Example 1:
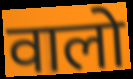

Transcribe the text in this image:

वालो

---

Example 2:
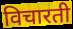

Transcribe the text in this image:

विचारती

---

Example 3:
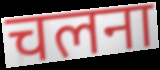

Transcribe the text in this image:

चलना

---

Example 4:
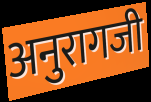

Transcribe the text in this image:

अनुरागजी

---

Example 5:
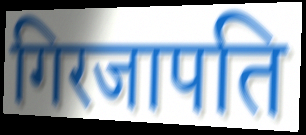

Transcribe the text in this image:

गिरजापति